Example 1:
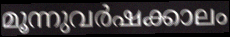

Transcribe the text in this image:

മൂന്നുവർഷക്കാലം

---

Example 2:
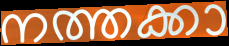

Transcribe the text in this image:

നത്തക്കാ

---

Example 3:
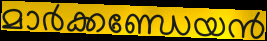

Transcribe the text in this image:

മാർക്കണ്ഡേയൻ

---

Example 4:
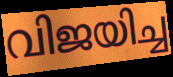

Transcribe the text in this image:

വിജയിച്ച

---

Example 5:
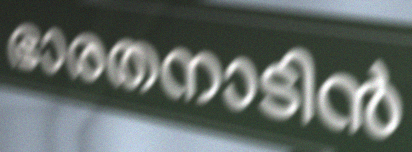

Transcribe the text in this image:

ഭാരതനാടിൻ